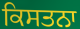
ਕਿਸਤਨਾ